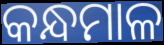
କନ୍ଧମାଳ